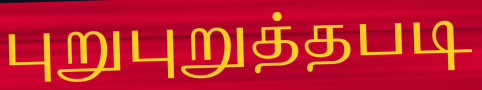
புறுபுறுத்தபடி